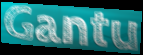
Gantu